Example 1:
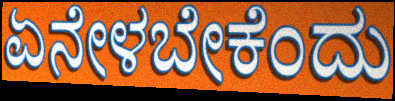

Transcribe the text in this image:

ಏನೇಳಬೇಕೆಂದು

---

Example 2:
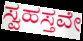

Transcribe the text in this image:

ಸ್ವಹಸ್ತವೇ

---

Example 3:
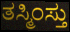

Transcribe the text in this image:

ತಸ್ಮಿಂಸ್ತು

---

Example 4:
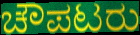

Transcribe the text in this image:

ಚೌಪಟರು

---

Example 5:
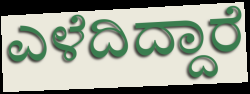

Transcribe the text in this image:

ಎಳೆದಿದ್ದಾರೆ